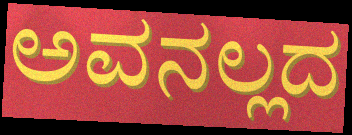
ಅವನಲ್ಲದ